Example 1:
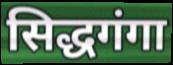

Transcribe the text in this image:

सिद्धगंगा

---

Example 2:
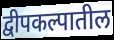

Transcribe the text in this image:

द्वीपकल्पातील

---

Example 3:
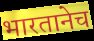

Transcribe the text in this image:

भारतानेच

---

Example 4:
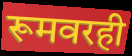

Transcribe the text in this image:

रूमवरही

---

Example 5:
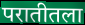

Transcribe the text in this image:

परातीतला